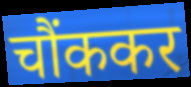
चौंककर